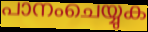
പാനംചെയ്യുക